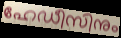
ഹേഡീസിനും